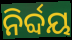
ନିର୍ବ୍ଦୟ